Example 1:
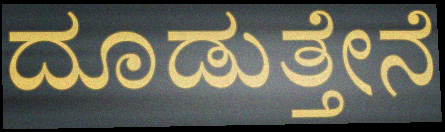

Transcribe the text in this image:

ದೂಡುತ್ತೇನೆ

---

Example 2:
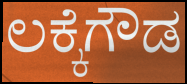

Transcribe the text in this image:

ಲಕ್ಕೆಗೌಡ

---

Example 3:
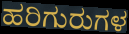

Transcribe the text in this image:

ಹರಿಗುರುಗಳ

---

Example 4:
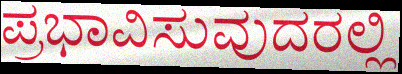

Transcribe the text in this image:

ಪ್ರಭಾವಿಸುವುದರಲ್ಲಿ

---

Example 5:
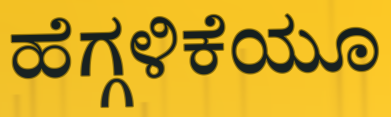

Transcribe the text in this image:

ಹೆಗ್ಗಳಿಕೆಯೂ